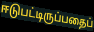
ஈடுபட்டிருப்பதைப்